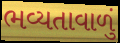
ભવ્યતાવાળું